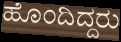
ಹೊಂದಿದ್ದರು